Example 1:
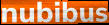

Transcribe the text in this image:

nubibus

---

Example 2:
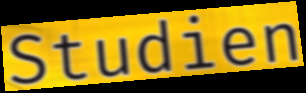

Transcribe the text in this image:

Studien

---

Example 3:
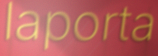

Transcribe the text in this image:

laporta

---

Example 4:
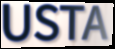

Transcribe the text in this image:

USTA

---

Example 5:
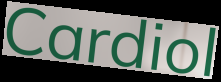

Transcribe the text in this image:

Cardiol